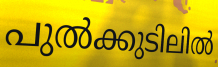
പുൽക്കുടിലിൽ